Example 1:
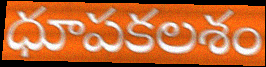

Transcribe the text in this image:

ధూపకలశం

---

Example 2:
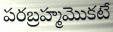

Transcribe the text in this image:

పరబ్రహ్మమొకటే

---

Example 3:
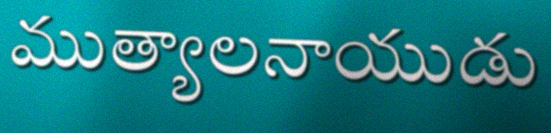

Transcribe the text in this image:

ముత్యాలనాయుడు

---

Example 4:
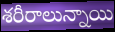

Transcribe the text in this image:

శరీరాలున్నాయి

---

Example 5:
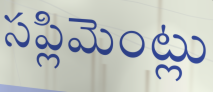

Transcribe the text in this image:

సప్లిమెంట్లు